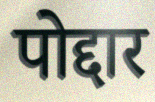
पोद्दार